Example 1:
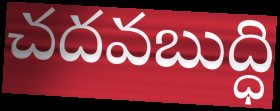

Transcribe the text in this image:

చదవబుద్ధి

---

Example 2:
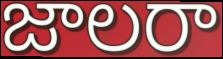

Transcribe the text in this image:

జాలరా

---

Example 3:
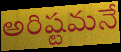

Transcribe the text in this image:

అరిష్టమనే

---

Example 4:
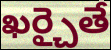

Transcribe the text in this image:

ఖర్చైతే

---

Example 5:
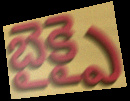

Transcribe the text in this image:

బైక్పై